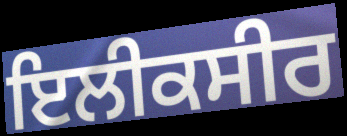
ਇਲੀਕਸੀਰ